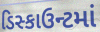
ડિસ્કાઉન્ટમાં